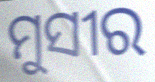
ମୁସୀର